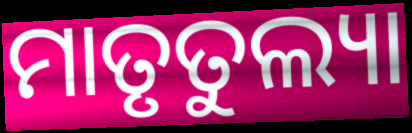
ମାତୃତୁଲ୍ୟା